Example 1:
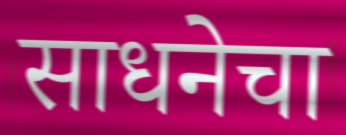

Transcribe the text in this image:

साधनेचा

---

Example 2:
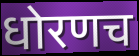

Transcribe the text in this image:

धोरणच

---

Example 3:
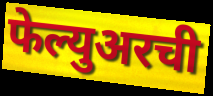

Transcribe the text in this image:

फेल्युअरची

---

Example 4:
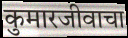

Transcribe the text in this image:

कुमारजीवाचा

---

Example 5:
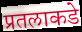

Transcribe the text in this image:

प्रतलाकडे